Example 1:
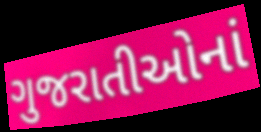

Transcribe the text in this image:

ગુજરાતીઓનાં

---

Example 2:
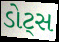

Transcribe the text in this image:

ડોટ્સ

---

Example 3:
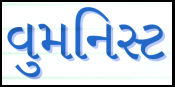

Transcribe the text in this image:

વુમનિસ્ટ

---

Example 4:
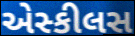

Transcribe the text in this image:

એસ્કીલસ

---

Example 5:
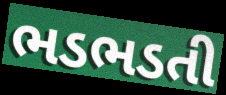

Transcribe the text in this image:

ભડભડતી